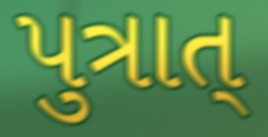
પુત્રાત્